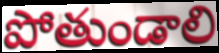
పోతుండాలి